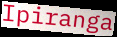
Ipiranga